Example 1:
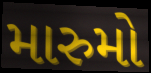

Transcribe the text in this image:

મારુમો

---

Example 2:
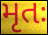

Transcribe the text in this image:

મૃતઃ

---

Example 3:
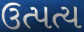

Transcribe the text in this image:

ઉત્પત્ય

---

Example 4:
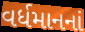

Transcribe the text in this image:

વર્ધમાનનાં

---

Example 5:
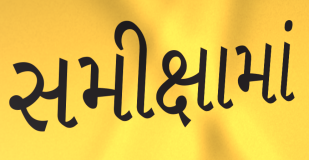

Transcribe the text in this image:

સમીક્ષામાં